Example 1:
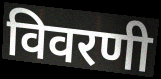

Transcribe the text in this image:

विवरणी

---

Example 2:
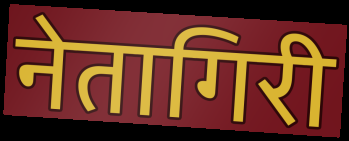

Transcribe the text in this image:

नेतागिरी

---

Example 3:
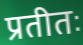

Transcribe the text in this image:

प्रतीतः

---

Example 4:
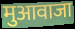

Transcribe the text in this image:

मुआवाजा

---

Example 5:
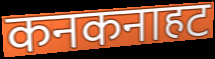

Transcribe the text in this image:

कनकनाहट